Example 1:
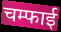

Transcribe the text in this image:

चम्फाई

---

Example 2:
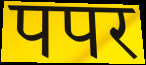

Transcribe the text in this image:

पपर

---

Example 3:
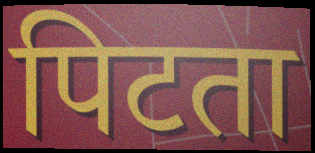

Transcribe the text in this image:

पिटता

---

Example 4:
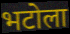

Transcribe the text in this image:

भटोला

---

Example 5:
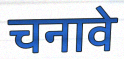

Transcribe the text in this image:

चनावे